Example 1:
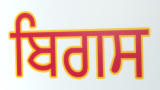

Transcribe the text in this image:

ਬਿਗਸ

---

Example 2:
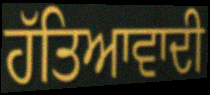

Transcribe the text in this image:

ਹੱਤਿਆਵਾਦੀ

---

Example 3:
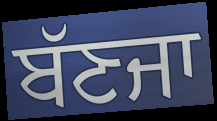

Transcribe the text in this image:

ਬੱਣਜਾ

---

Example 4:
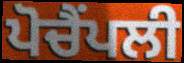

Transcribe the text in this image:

ਪੋਚੈਂਪਲੀ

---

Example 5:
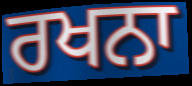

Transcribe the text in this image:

ਰਖਨਾ